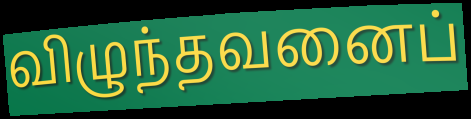
விழுந்தவனைப்